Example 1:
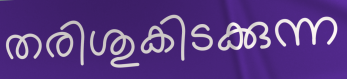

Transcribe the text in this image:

തരിശുകിടക്കുന്ന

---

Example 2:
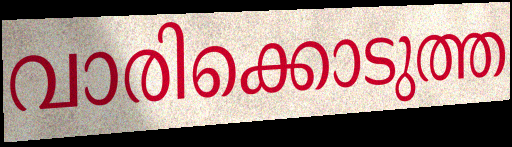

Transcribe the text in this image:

വാരിക്കൊടുത്ത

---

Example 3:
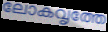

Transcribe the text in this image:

ലോകവൃത്തേ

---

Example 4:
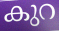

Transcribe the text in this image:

കുറ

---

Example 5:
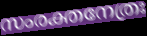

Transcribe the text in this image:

സംരക്തനേത്രഃ